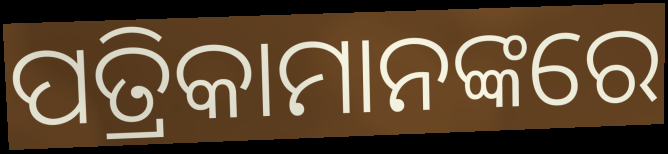
ପତ୍ରିକାମାନଙ୍କରେ